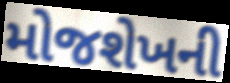
મોજશેખની